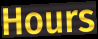
Hours